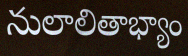
నులాలితాభ్యాం